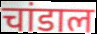
चांडाल